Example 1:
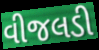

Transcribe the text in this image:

વીજલડી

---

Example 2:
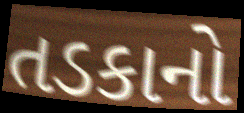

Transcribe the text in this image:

તડકાનો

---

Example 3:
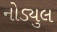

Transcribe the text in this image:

નોડ્યુલ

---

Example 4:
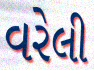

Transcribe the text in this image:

વરેલી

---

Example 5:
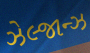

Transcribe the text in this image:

ઝેલ્જાન્ઝ